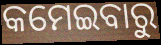
କମେଇବାରୁ